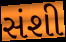
સંશી